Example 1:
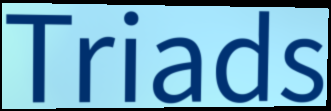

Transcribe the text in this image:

Triads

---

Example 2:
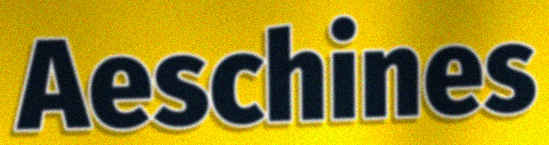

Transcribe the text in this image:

Aeschines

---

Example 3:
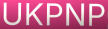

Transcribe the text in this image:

UKPNP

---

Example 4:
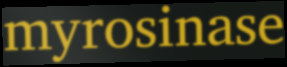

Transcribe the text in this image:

myrosinase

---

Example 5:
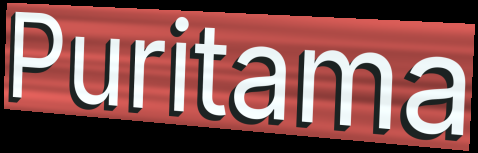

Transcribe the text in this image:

Puritama